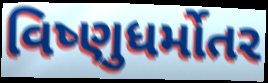
વિષ્ણુધર્મોતર